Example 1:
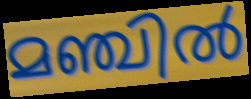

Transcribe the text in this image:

മഞ്ചിൽ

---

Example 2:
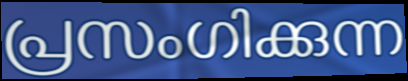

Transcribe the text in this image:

പ്രസംഗിക്കുന്ന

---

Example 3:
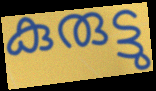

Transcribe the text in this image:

കുരുട്ടു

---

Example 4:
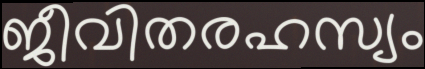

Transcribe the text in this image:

ജീവിതരഹസ്യം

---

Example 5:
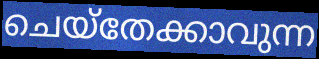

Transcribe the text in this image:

ചെയ്തേക്കാവുന്ന